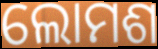
ଲୋମଶ